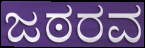
ಜಠರವ